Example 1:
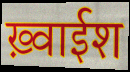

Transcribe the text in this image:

ख़्वाईश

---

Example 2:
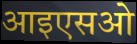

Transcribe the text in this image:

आइएसओ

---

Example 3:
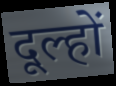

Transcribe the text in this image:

दूल्हों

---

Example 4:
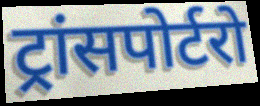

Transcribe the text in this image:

ट्रांसपोर्टरो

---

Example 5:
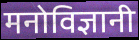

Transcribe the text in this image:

मनोविज्ञानी